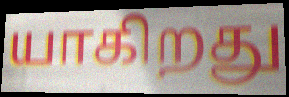
யாகிறது